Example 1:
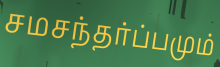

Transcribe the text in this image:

சமசந்தர்ப்பமும்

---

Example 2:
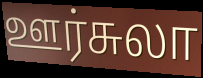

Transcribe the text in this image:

ஊர்சுலா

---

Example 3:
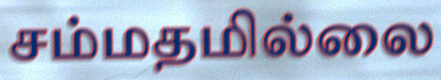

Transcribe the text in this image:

சம்மதமில்லை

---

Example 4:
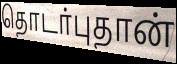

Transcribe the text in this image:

தொடர்புதான்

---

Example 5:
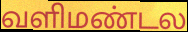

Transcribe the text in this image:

வளிமண்டல